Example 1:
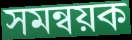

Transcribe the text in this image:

সমন্বয়ক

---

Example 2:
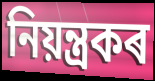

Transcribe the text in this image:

নিয়ন্ত্ৰকৰ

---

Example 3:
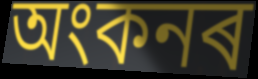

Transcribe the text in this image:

অংকনৰ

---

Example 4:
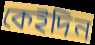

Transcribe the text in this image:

কেইদিন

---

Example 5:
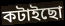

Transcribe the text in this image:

কটাইছো